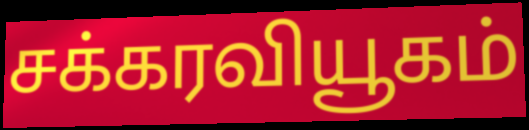
சக்கரவியூகம்